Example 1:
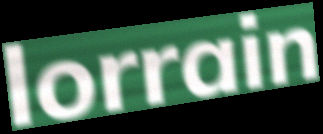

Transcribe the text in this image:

lorrain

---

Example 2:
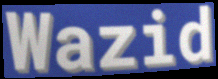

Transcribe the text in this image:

Wazid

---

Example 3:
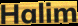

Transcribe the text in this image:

Halim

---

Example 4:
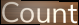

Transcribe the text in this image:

Count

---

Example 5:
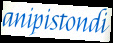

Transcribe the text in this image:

anipistondi